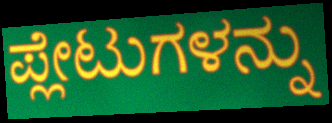
ಪ್ಲೇಟುಗಳನ್ನು